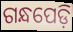
ଗନ୍ଧପେଡ଼ି